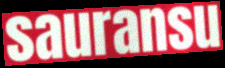
sauransu